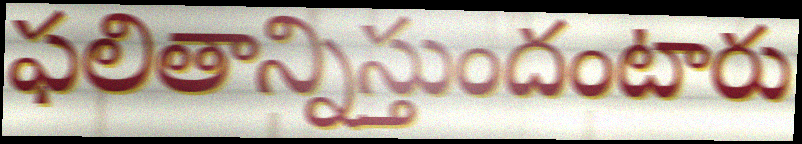
ఫలితాన్నిస్తుందంటారు